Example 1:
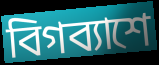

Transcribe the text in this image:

বিগব্যাশে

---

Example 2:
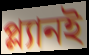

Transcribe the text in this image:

প্ল্যানই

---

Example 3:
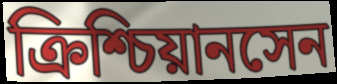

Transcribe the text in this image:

ক্রিশ্চিয়ানসেন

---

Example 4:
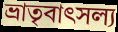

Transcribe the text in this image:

ভ্রাতৃবাৎসল্য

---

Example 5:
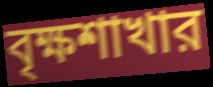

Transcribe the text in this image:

বৃক্ষশাখার